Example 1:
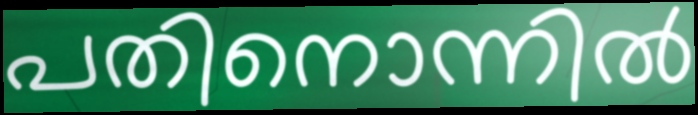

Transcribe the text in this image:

പതിനൊന്നിൽ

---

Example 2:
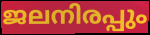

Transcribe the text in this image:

ജലനിരപ്പും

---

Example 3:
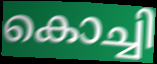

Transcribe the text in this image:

കൊച്ചി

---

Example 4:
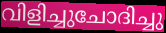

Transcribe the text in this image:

വിളിച്ചുചോദിച്ചു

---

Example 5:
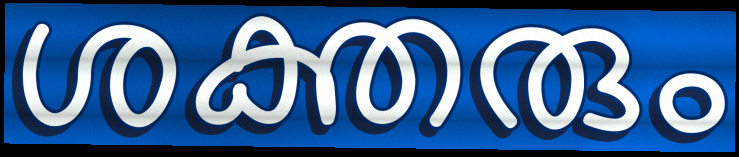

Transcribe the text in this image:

ശക്തരും